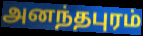
அனந்தபுரம்